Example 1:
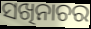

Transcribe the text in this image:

ସଖିନାଚର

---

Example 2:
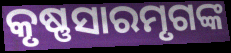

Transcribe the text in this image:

କୃଷ୍ଣସାରମୃଗଙ୍କ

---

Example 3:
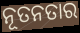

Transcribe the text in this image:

ନୂତନତାର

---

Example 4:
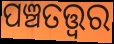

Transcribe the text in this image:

ପଞ୍ଚତତ୍ତ୍ୱର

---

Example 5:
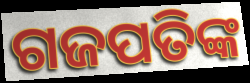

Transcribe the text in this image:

ଗଜପତିଙ୍କ